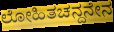
ಲೋಹಿತಚನ್ದನೇನ